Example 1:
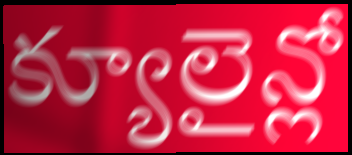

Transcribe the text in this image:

క్యూలైన్లో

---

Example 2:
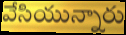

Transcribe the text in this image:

వేసియున్నారు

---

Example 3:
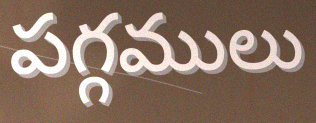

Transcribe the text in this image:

పగ్గములు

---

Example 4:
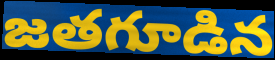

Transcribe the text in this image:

జతగూడిన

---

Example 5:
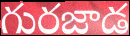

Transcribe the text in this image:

గురజాడ